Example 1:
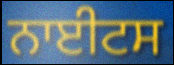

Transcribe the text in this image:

ਨਾਈਟਸ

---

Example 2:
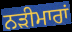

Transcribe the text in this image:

ਨੜੀਮਾਰਾਂ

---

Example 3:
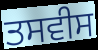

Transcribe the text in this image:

ਤਸਵੀਸ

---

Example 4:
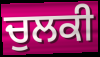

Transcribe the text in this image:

ਚੁਲਕੀ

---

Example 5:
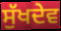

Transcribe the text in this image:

ਸੁੱਖਦੇਵ